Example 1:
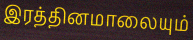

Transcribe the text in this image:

இரத்தினமாலையும்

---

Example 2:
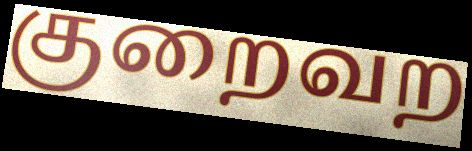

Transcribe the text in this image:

குறைவற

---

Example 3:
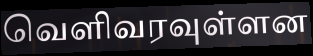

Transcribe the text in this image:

வெளிவரவுள்ளன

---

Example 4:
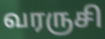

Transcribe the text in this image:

வரருசி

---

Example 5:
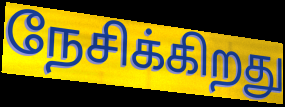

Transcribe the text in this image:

நேசிக்கிறது